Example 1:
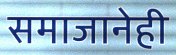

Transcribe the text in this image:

समाजानेही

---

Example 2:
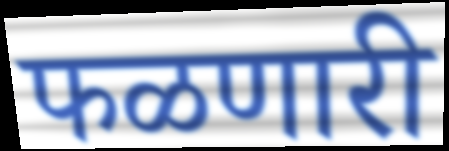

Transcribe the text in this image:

फळणारी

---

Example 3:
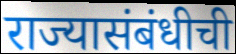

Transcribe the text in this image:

राज्यासंबंधीची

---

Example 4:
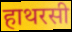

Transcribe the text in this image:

हाथरसी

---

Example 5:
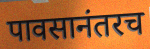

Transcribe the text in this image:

पावसानंतरच